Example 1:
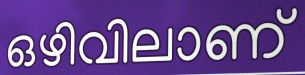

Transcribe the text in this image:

ഒഴിവിലാണ്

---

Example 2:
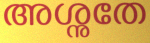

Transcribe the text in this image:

അശ്നുതേ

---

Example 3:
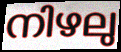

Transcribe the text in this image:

നിഴലു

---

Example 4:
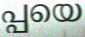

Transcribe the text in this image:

പ്പയെ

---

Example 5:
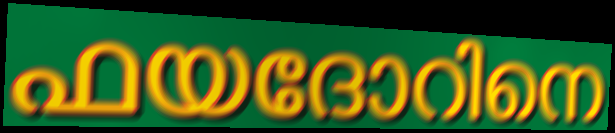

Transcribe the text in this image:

ഫയദോറിനെ